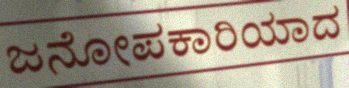
ಜನೋಪಕಾರಿಯಾದ